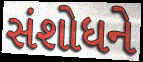
સંશોધને